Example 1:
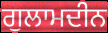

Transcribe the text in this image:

ਗੁਲਾਮਦੀਨ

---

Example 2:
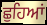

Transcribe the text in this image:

ਛੁਹਿਆਂ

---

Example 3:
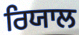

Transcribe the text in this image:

ਰਿਯਾਲ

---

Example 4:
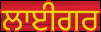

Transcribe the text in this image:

ਲਾਈਗਰ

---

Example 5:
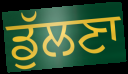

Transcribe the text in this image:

ਡੁੱਲਣਾ